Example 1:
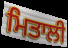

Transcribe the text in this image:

ਮਿਤਾਲੀ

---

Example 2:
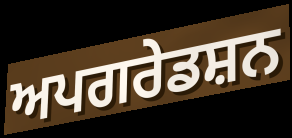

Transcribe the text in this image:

ਅਪਗਰੇਡਸ਼ਨ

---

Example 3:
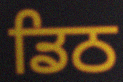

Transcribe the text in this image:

ਡਿਠ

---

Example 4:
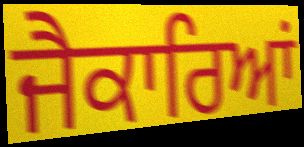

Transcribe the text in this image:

ਜੈਕਾਰਿਆਂ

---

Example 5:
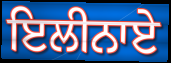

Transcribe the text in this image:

ਇਲੀਨਾਏ